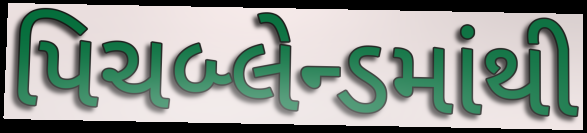
પિચબ્લેન્ડમાંથી